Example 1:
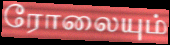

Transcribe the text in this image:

ரோலையும்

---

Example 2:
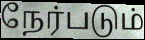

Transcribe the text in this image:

நேர்படும்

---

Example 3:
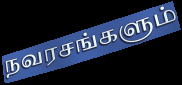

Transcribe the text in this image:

நவரசங்களும்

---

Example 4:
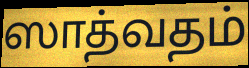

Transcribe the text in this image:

ஸாத்வதம்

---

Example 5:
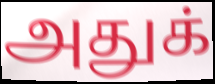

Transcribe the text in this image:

அதுக்